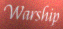
Warship